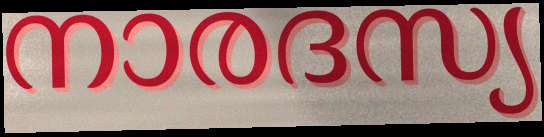
നാരദസ്യ